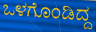
ಒಳಗೊಂಡಿದ್ದ